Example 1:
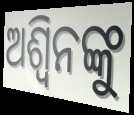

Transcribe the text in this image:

ଅଶ୍ବିନଙ୍କୁ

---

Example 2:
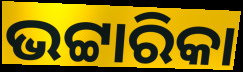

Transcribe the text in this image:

ଭଟ୍ଟାରିକା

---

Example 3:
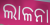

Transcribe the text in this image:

ଲାଳନା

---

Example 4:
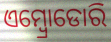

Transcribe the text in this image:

ଏମ୍ବ୍ରୋଡୋରି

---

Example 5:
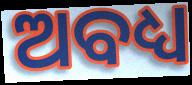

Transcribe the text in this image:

ଅବଧ୍ୟ